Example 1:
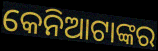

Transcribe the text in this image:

କେନିଆଟାଙ୍କର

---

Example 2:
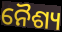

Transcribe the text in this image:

ନୈଶ୍ୟ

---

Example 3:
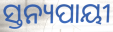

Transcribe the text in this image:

ସ୍ତନ୍ୟପାୟୀ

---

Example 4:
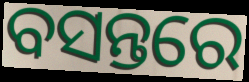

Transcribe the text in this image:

ବସନ୍ତରେ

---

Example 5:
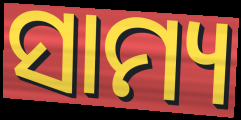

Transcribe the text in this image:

ସାମ୍ୟ